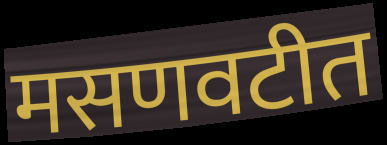
मसणवटीत